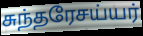
சுந்தரேசய்யர்